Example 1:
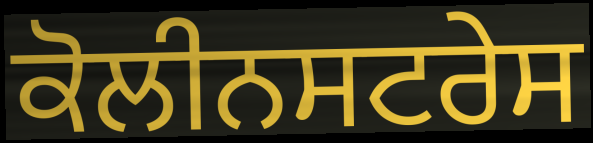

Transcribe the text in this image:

ਕੋਲੀਨਸਟਰੇਸ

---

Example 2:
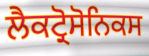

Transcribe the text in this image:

ਲੈਕਟ੍ਰੋਸੋਨਿਕਸ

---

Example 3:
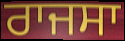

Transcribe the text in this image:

ਰਾਜਸਾ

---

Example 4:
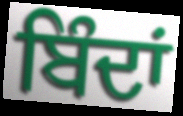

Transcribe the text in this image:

ਬਿੰਦਾਂ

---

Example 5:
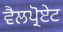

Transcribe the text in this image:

ਵੈਲਪ੍ਰੋਏਟ